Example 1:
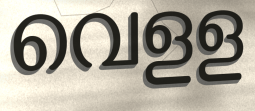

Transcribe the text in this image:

വെളള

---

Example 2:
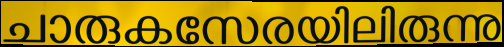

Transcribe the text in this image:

ചാരുകസേരയിലിരുന്നു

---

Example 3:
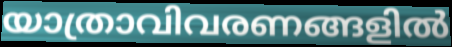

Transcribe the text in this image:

യാത്രാവിവരണങ്ങളിൽ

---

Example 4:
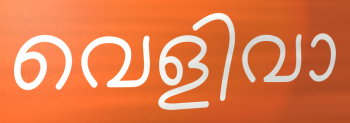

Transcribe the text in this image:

വെളിവാ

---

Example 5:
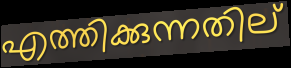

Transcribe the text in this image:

എത്തിക്കുന്നതില്